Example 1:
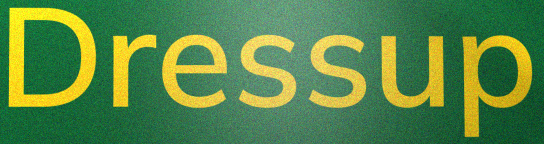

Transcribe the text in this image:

Dressup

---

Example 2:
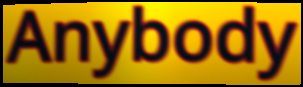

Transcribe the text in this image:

Anybody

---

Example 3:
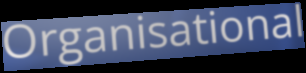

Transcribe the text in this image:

Organisational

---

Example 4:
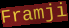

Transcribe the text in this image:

Framji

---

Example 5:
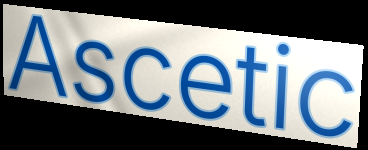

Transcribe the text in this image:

Ascetic